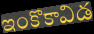
ఇంకొకావిడ